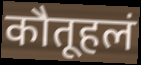
कौतूहलं